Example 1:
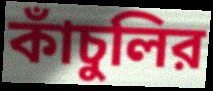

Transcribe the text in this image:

কাঁচুলির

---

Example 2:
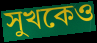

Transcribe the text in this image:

সুখকেও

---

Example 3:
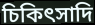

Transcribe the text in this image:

চিকিৎসাদি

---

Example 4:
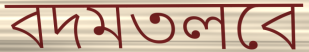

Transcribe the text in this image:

বদমতলবে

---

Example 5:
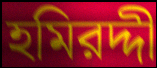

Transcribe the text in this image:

হমিরদ্দী